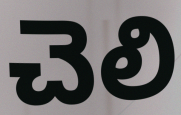
చెలి